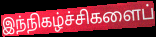
இந்நிகழ்ச்சிகளைப்